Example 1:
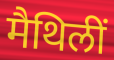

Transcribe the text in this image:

मैथिलीं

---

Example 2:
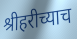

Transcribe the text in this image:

श्रीहरीच्याच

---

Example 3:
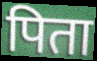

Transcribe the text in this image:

पिता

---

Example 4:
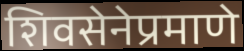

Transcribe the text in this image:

शिवसेनेप्रमाणे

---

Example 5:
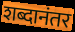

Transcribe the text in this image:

शब्दानंतर